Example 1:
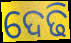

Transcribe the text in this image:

ଦେଢି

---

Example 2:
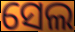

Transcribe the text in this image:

ସେଲ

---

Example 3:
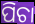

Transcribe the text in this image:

ପିଚା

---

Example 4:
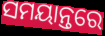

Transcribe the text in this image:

ସମୟାନ୍ତରେ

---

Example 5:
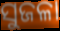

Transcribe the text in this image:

ସୁଜଳା